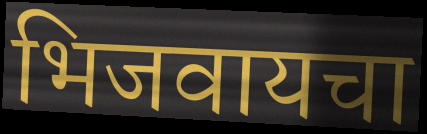
भिजवायचा